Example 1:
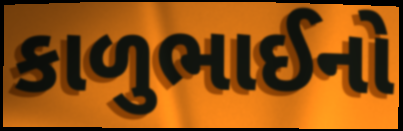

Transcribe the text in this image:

કાળુભાઈનો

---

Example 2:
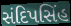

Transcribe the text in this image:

સંદિપસિંહ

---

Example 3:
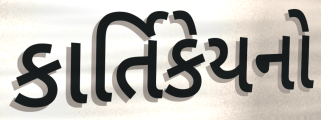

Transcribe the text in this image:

કાર્તિકેયનો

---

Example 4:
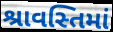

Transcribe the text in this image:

શ્રાવસ્તિમાં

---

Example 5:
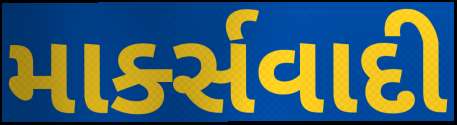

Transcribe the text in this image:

માર્ક્સવાદી